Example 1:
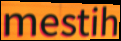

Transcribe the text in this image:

mestih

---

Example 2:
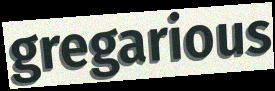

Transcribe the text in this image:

gregarious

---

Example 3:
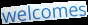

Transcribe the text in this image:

welcomes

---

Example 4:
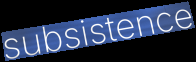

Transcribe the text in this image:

subsistence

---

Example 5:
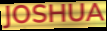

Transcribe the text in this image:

JOSHUA